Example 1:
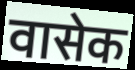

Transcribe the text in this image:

वासेक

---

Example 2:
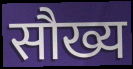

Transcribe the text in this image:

सौख्य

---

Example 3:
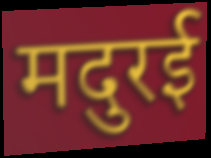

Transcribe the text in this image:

मदुरई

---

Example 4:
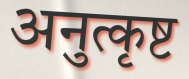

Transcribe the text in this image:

अनुत्कृष्ट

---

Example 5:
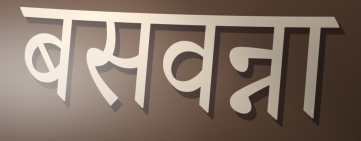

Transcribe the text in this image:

बसवन्ना